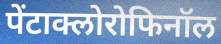
पेंटाक्लोरोफिनॉल